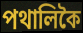
পথালিকৈ